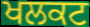
ਖਲਕਟ